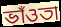
ভাঁওতা